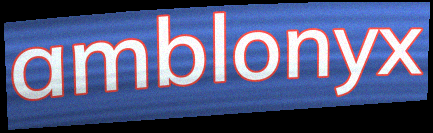
amblonyx